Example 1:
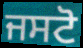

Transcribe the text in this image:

ਜਸਟੋ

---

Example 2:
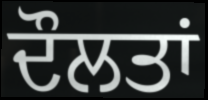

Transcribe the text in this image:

ਦੌਲਤਾਂ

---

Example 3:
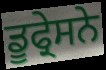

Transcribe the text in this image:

ਡੂਫ੍ਰੇਸਨੇ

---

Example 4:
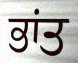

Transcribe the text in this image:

ਭਾਂਤ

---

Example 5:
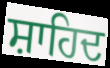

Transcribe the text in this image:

ਸ਼ਾਹਿਦ